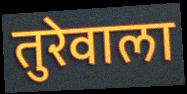
तुरेवाला